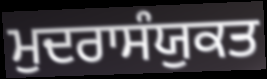
ਮੁਦਰਾਸੰਯੁਕਤ